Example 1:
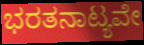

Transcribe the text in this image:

ಭರತನಾಟ್ಯವೇ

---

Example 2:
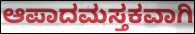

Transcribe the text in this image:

ಆಪಾದಮಸ್ತಕವಾಗಿ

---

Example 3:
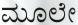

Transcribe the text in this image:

ಮೂಲೇ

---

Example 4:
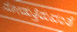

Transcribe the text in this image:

ನೋಡುತ್ತಿರುವಂತೆ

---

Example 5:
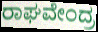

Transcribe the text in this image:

ರಾಘವೇಂದ್ರ